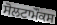
ਸੋਲਟਾਮੌਕਸ